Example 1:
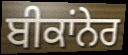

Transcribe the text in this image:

ਬੀਕਾਂਨੇਰ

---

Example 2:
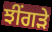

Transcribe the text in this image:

ਝੀਂਗੜੇ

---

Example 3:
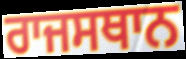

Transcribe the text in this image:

ਰਾਜਸਥਾਨ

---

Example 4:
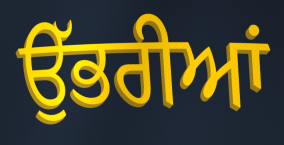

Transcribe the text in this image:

ਉੱਭਰੀਆਂ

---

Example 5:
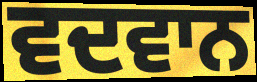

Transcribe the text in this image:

ਵਦਵਾਨ